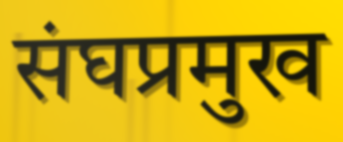
संघप्रमुख